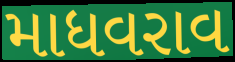
માધવરાવ